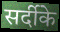
सर्दीके